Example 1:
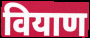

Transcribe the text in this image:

वियाण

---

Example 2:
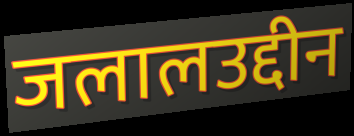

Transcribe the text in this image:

जलालउद्दीन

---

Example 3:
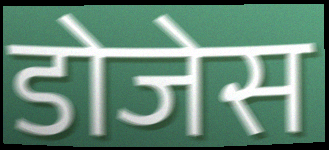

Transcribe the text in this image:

डोजेस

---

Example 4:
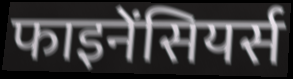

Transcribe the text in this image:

फाइनेंसियर्स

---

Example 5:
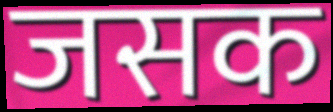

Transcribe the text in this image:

जसक